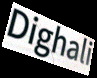
Dighali